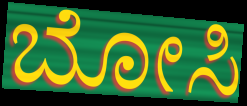
ಬೋಸಿ